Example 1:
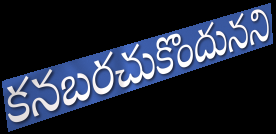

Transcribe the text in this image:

కనబరచుకొందునని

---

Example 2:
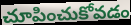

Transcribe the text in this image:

చూపించుకోవడం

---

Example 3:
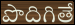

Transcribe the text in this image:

పొదిగితే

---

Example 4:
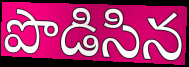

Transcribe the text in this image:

పొడిసిన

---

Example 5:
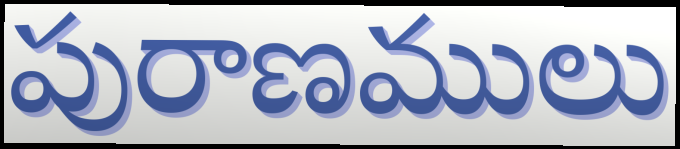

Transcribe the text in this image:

పురాణములు